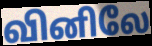
வினிலே